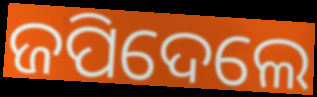
ଜପିଦେଲେ